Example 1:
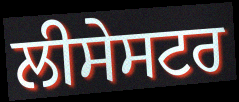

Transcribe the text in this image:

ਲੀਸੇਸਟਰ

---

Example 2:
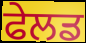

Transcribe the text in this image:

ਫੇਲਡ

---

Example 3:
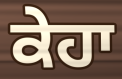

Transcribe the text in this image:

ਕੇਹਾ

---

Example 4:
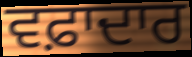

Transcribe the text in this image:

ਵਫ਼ਾਦਾਰ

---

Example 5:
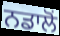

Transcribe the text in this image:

ਨਡਾਲੋਂ